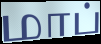
மாப்